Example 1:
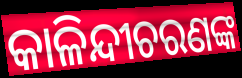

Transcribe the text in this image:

କାଳିନ୍ଦୀଚରଣଙ୍କ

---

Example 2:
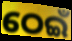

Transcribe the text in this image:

ଠେଇଁ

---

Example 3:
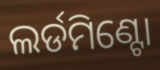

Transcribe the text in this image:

ଲର୍ଡମିଣ୍ଟୋ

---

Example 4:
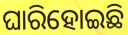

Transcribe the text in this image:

ଘାରିହୋଇଛି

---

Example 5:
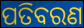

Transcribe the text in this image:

ପତିବରଣ